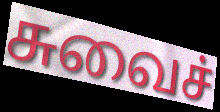
சுவைச்